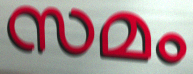
സമം